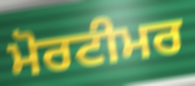
ਮੋਰਟੀਮਰ